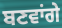
ਬਣਵਾਂਗੇ